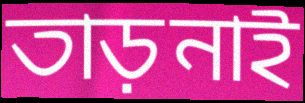
তাড়নাই